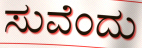
ಸುವೆಂದು